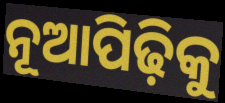
ନୂଆପିଢ଼ିକୁ